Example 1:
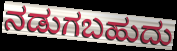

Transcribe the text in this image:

ನಡುಗಬಹುದು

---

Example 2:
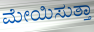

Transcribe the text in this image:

ಮೇಯಿಸುತ್ತಾ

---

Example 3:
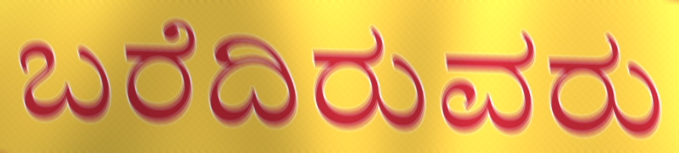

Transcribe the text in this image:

ಬರೆದಿರುವರು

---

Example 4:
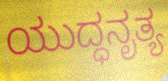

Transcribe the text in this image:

ಯುದ್ಧನೃತ್ಯ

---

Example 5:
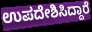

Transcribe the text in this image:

ಉಪದೇಶಿಸಿದ್ದಾರೆ